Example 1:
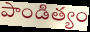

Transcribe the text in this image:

పాండిత్యం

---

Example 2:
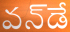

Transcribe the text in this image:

వన్‌డే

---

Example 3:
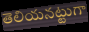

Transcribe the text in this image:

తెలియనట్టుగా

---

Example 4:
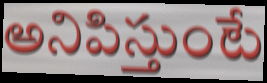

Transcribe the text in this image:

అనిపిస్తుంటే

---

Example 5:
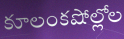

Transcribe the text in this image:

కూలంకషోల్లోల